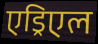
एड्रिएल